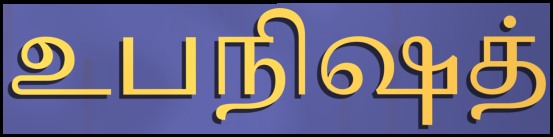
உபநிஷத்